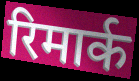
रिमार्क